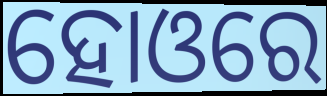
ହୋଓରେ